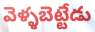
వెళ్ళబెట్టేడు